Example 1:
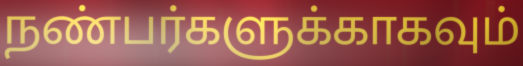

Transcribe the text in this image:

நண்பர்களுக்காகவும்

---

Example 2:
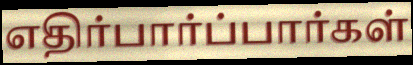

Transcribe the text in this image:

எதிர்பார்ப்பார்கள்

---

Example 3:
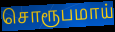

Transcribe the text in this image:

சொரூபமாய்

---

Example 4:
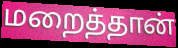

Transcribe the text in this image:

மறைத்தான்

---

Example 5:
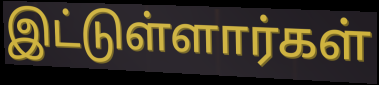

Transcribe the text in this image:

இட்டுள்ளார்கள்